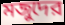
মজুদের